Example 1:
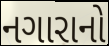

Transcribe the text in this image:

નગારાનો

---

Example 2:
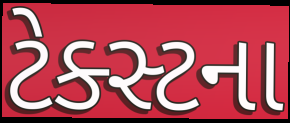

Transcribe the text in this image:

ટેક્સ્ટના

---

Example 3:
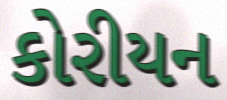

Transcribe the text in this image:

કોરીયન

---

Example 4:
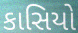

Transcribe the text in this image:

કાસિયો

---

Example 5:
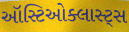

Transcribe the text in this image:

ઑસ્ટિઓક્લાસ્ટ્સ